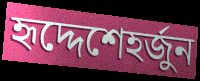
হৃদ্দেশেহর্জুন